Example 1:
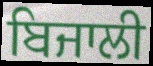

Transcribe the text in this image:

ਬਿਜਾਲੀ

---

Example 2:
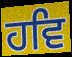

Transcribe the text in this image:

ਹਵਿ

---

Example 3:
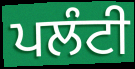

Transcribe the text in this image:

ਪਲੰਟੀ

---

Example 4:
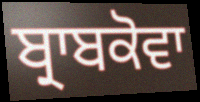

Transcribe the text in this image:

ਬ੍ਰਾਬਕੋਵਾ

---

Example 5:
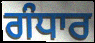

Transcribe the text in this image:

ਗੰਧਾਰ